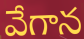
వేగాన